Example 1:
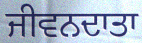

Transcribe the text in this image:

ਜੀਵਨਦਾਤਾ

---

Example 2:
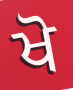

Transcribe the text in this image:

ਖੋ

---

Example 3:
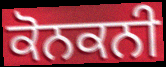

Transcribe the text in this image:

ਕੋਨਕਨੀ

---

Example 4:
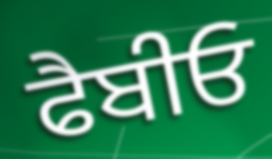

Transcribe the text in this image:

ਫੈਬੀਓ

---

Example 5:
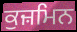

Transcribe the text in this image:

ਕੁਜ਼ਮਿਨ